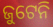
ଜୁଟେନି